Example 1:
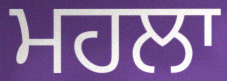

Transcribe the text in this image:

ਮਹਲਾ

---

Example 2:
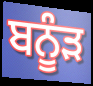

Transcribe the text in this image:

ਬਨੂੰੜ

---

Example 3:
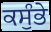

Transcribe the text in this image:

ਕਸੁੰਭੇ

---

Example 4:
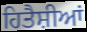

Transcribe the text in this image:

ਹਿਤੈਸ਼ੀਆਂ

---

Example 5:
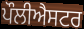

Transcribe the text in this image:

ਪੌਲੀਐਸਟਰ